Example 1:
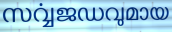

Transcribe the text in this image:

സൎവ്വജഡവുമായ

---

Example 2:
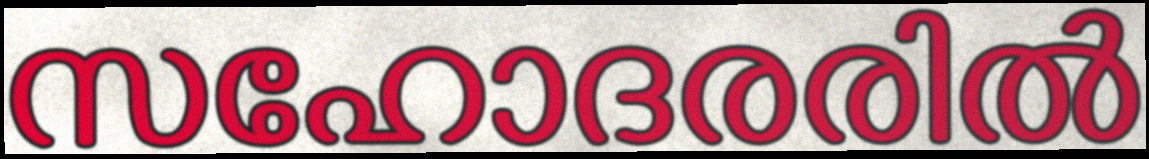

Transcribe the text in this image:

സഹോദരരിൽ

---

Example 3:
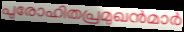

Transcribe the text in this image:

പുരോഹിതപ്രമുഖൻമാർ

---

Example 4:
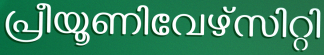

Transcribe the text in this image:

പ്രീയൂണിവേഴ്സിറ്റി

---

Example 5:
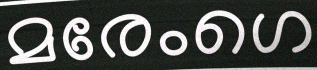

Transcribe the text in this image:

മരേംഗെ